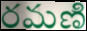
రమణి